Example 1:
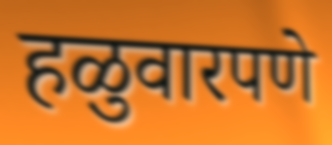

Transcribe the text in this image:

हळुवारपणे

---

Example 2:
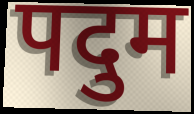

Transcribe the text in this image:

पदुम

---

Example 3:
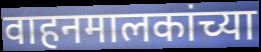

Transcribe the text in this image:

वाहनमालकांच्या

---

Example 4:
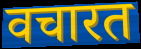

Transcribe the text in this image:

वचारत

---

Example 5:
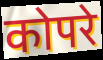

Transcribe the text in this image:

कोपरे